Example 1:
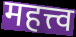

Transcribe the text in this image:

महत्त्व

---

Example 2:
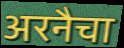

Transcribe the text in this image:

अरनैचा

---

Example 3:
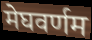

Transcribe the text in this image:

मेघवर्णम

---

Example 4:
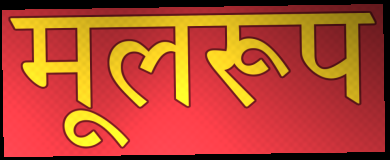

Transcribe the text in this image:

मूलरूप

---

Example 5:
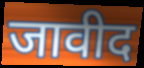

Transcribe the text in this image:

जावीद